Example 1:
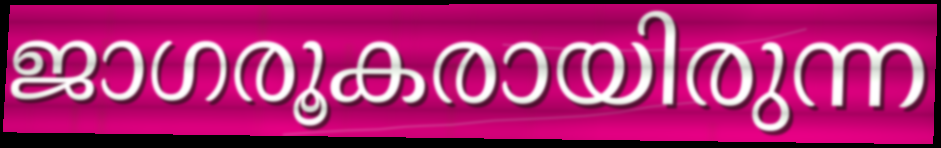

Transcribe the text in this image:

ജാഗരൂകരായിരുന്ന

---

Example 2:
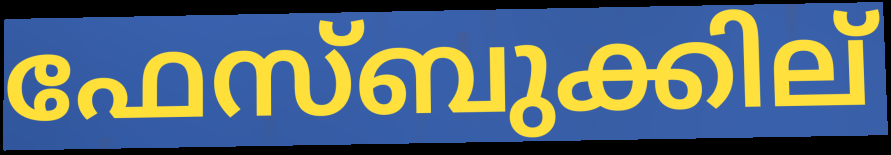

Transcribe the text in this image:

ഫേസ്ബുക്കില്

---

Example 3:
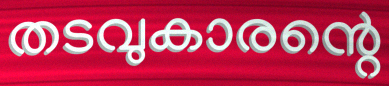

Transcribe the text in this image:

തടവുകാരന്റെ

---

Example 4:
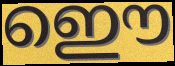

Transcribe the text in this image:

ഇൌ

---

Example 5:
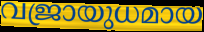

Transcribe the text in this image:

വജ്രായുധമായ